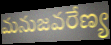
మనుజవరేణ్య